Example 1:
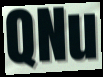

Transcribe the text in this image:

QNu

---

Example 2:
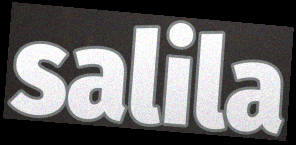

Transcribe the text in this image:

salila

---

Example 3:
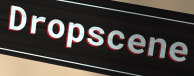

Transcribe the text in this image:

Dropscene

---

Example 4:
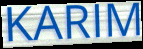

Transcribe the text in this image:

KARIM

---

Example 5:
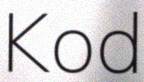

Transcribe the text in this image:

Kod